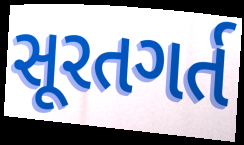
સૂરતગર્ત